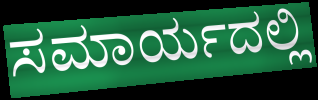
ಸಮಾರ್ಯದಲ್ಲಿ